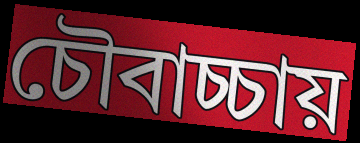
চৌবাচ্চায়